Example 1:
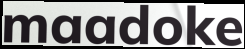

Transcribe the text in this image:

maadoke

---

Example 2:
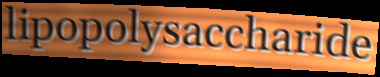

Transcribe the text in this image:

lipopolysaccharide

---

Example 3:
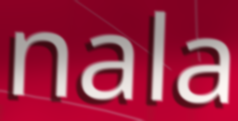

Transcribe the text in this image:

nala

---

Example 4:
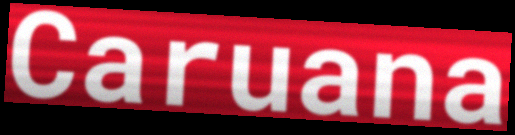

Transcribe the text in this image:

Caruana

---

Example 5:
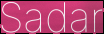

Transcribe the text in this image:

Sadar